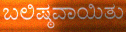
ಬಲಿಷ್ಠವಾಯಿತು